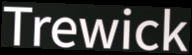
Trewick